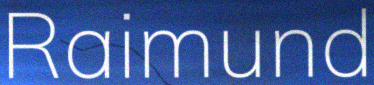
Raimund